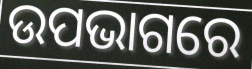
ଉପଭାଗରେ